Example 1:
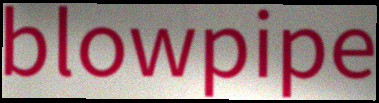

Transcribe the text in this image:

blowpipe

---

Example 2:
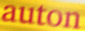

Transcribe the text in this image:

auton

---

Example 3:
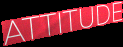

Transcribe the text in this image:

ATTITUDE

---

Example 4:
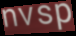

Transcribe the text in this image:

nvsp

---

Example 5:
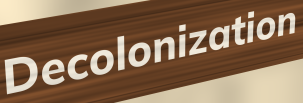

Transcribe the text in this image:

Decolonization